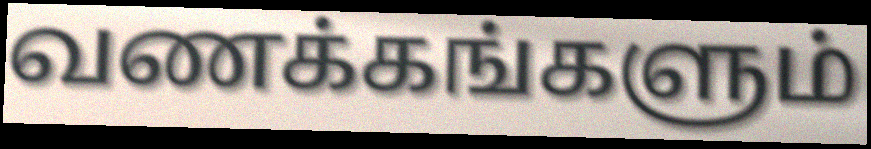
வணக்கங்களும்